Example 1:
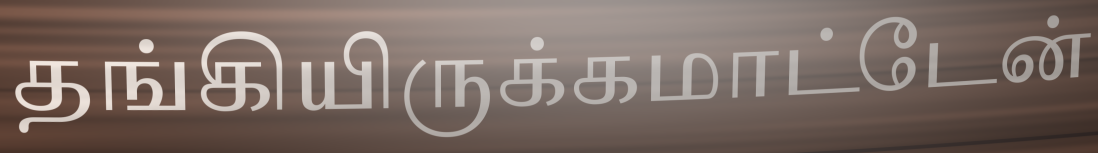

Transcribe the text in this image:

தங்கியிருக்கமாட்டேன்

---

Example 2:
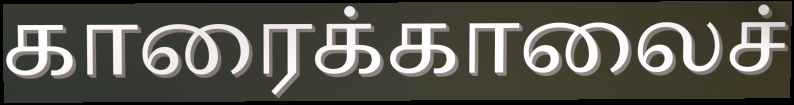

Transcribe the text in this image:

காரைக்காலைச்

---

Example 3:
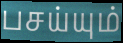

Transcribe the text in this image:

பசய்யும்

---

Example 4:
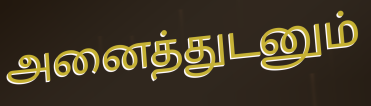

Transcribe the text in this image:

அனைத்துடனும்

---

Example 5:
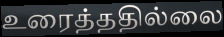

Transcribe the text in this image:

உரைத்ததில்லை